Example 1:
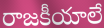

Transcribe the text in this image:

రాజకీయాలే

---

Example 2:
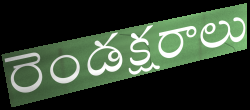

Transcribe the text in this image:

రెండక్షరాలు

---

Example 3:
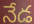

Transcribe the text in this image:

నేడ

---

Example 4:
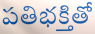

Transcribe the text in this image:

పతిభక్తితో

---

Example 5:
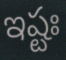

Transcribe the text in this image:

ఇష్టః